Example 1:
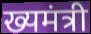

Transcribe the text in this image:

ख्यमंत्री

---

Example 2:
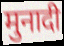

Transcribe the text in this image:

मुनादी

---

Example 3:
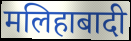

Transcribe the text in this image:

मलिहाबादी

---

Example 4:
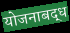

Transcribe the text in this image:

योजनाबद्ध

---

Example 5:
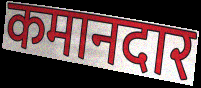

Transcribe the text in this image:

कमानदार